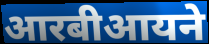
आरबीआयने